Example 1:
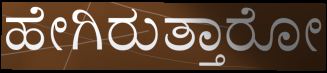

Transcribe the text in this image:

ಹೇಗಿರುತ್ತಾರೋ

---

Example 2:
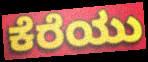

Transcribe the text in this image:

ಕೆರೆಯು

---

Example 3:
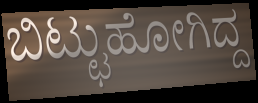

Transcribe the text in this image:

ಬಿಟ್ಟುಹೋಗಿದ್ದ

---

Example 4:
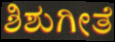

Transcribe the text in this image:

ಶಿಶುಗೀತೆ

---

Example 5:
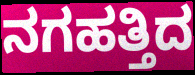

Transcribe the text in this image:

ನಗಹತ್ತಿದ